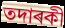
তদাৰকী